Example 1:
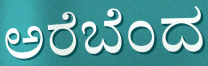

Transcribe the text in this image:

ಅರೆಬೆಂದ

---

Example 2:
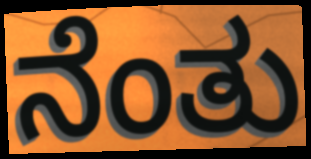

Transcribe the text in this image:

ನೆಂತು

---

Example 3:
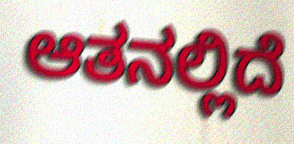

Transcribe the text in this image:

ಆತನಲ್ಲಿದೆ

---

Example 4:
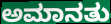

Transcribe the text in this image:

ಅಮಾನತು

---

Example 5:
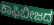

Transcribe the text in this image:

ಕಾಫಿಬೀಜದ